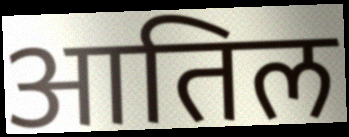
आतिल